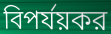
বিপর্যয়কর